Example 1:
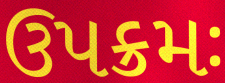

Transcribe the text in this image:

ઉપક્રમઃ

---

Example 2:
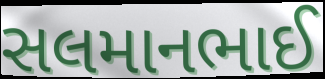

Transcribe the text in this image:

સલમાનભાઈ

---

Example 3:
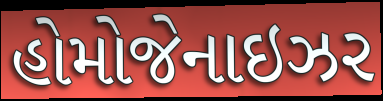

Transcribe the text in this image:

હોમોજેનાઇઝર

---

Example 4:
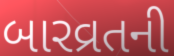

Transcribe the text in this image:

બારવ્રતની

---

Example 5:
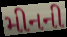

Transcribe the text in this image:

મીનની